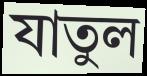
যাতুল